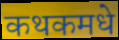
कथकमधे